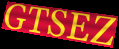
GTSEZ